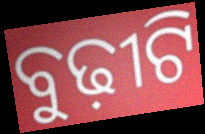
ବୁଢ଼ୀଟି